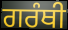
ਗਰੰਥੀ